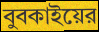
বুবকাইয়ের